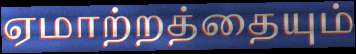
ஏமாற்றத்தையும்